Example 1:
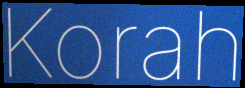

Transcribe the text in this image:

Korah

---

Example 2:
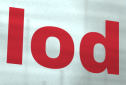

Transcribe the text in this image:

lod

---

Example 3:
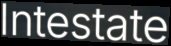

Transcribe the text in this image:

Intestate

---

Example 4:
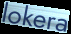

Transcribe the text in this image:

lokera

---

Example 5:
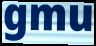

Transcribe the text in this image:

gmu